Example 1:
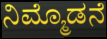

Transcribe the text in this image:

ನಿಮ್ಮೊಡನೆ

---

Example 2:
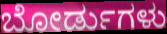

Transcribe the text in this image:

ಬೋರ್ಡುಗಳು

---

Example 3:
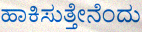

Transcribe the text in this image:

ಹಾಕಿಸುತ್ತೇನೆಂದು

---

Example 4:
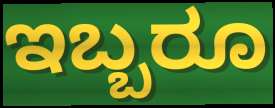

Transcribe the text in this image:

ಇಬ್ಬರೂ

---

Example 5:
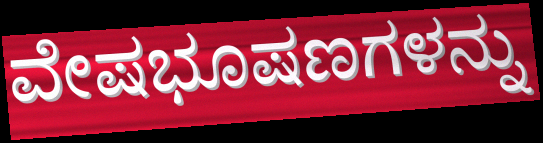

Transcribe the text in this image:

ವೇಷಭೂಷಣಗಳನ್ನು